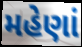
મહેણાં